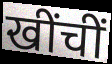
खींचीं